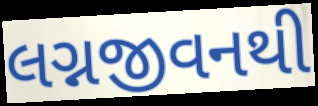
લગ્નજીવનથી